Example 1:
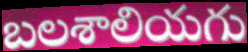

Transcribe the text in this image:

బలశాలియగు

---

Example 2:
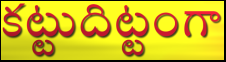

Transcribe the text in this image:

కట్టుదిట్టంగా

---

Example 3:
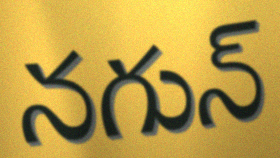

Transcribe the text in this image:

నగున్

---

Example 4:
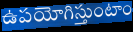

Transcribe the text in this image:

ఉపయోగిస్తుంటాం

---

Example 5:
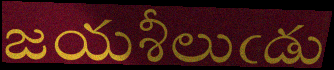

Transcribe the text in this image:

జయశీలుఁడు